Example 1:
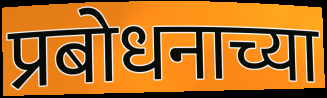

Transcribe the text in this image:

प्रबोधनाच्या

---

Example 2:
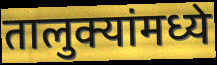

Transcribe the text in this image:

तालुक्यांमध्ये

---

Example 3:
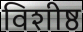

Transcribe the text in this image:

विशीष्ठ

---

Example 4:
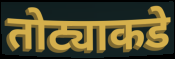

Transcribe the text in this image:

तोट्याकडे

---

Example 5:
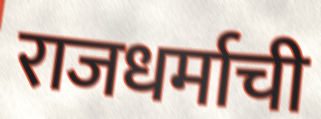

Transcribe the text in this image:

राजधर्माची